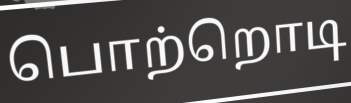
பொற்றொடி